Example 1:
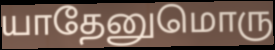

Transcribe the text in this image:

யாதேனுமொரு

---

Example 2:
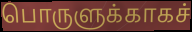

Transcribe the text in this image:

பொருளுக்காகச்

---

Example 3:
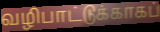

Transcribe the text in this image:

வழிபாட்டுக்காகப்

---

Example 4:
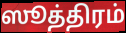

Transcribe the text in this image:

ஸூத்திரம்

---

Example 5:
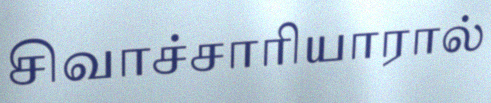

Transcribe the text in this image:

சிவாச்சாரியாரால்